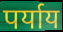
पर्याय